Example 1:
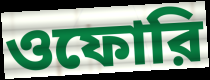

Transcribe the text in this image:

ওফোরি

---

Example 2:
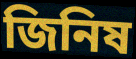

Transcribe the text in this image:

জিনিষ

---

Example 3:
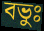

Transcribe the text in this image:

বভুঃ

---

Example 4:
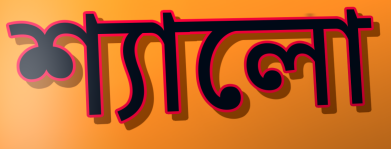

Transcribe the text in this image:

শ্যালো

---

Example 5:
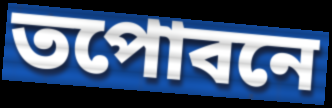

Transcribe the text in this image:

তপোবনে